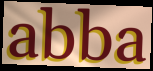
abba